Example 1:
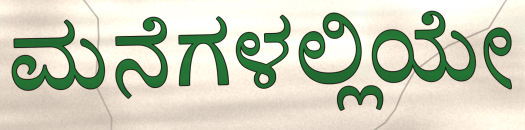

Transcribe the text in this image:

ಮನೆಗಳಲ್ಲಿಯೇ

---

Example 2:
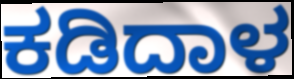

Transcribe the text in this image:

ಕಡಿದಾಳ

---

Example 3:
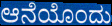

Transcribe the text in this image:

ಆನೆಯೊಂದು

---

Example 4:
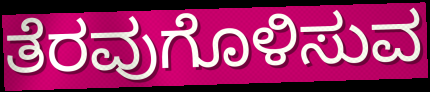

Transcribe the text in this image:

ತೆರವುಗೊಳಿಸುವ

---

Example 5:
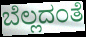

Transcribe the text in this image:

ಬೆಲ್ಲದಂತೆ